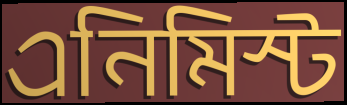
এনিমিস্ট